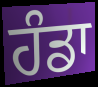
ਹੰਡਾ